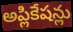
అప్లికేషన్లు